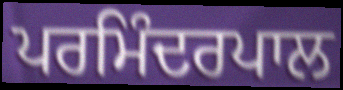
ਪਰਮਿੰਦਰਪਾਲ